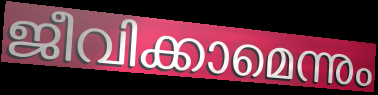
ജീവിക്കാമെന്നും